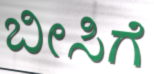
ಬೀಸಿಗೆ